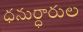
ధనుర్ధారుల